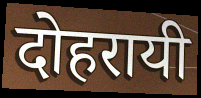
दोहरायी